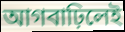
আগবাঢ়িলেই